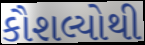
કૌશલ્યોથી